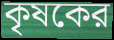
কৃষকের